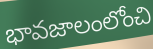
భావజాలంలోంచి